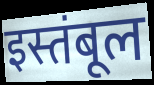
इस्तंबूल